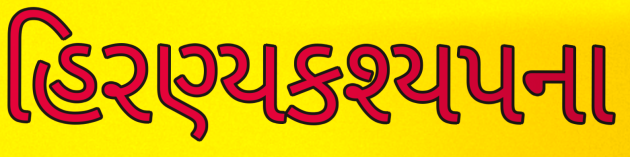
હિરણ્યકશ્યપના